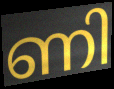
ണി